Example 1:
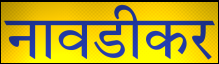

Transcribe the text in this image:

नावडीकर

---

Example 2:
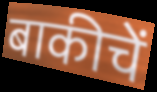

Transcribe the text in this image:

बाकीचें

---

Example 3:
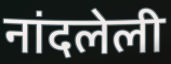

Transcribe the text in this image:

नांदलेली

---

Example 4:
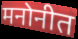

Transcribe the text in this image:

मनोनीत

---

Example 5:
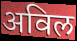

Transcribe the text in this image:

अविल